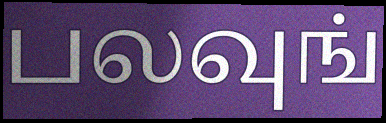
பலவுங்